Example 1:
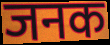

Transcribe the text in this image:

जनक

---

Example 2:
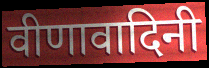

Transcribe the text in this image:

वीणावादिनी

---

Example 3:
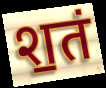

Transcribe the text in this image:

श॒तं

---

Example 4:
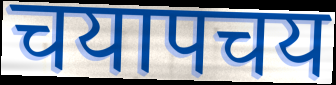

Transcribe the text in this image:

चयापचय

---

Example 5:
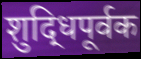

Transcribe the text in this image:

शुद्धिपूर्वक